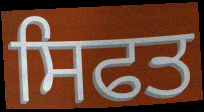
ਸਿਫਤ